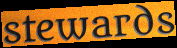
stewards